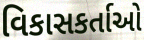
વિકાસકર્તાઓ